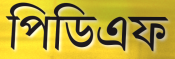
পিডিএফ